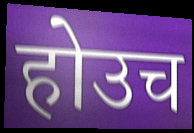
होउच